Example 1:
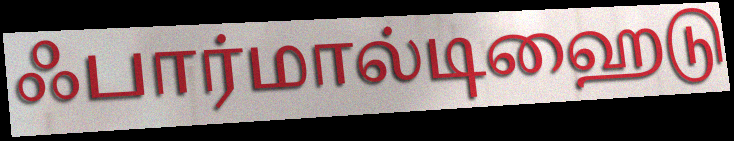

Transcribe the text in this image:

ஃபார்மால்டிஹைடு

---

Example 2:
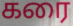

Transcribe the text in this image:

கரை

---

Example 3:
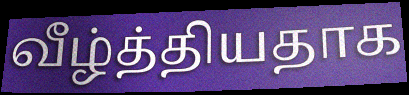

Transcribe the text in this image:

வீழ்த்தியதாக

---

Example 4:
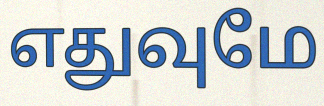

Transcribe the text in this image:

எதுவுமே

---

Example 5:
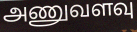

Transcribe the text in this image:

அணுவளவு